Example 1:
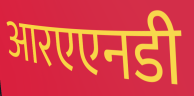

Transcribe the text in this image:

आरएएनडी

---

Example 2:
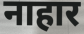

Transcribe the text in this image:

नाहार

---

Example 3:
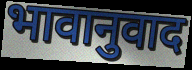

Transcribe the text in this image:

भावानुवाद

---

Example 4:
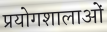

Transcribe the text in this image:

प्रयोगशालाओं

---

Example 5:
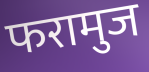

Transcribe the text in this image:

फरामुज